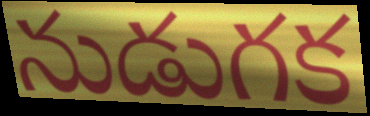
నుడుగక